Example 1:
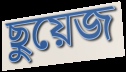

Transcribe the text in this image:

ছুয়েজ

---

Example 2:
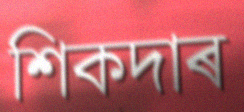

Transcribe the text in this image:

শিকদাৰ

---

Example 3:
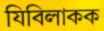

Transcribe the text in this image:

যিবিলাকক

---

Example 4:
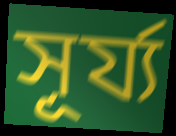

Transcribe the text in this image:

সূৰ্য্য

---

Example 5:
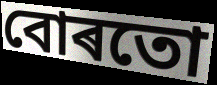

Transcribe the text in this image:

বোৰতো